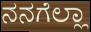
ನನಗೆಲ್ಲಾ